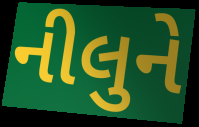
નીલુને